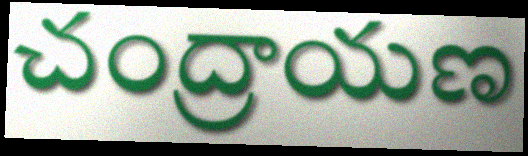
చంద్రాయణ